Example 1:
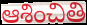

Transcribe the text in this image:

ఆశించితి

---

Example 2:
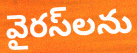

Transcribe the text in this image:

వైరస్‌లను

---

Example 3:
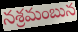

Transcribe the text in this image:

నశ్రమంబున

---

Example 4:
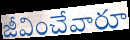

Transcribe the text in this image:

జీవించేవారూ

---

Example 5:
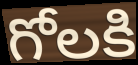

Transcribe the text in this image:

గోలకి